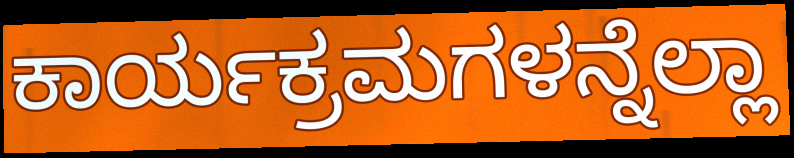
ಕಾರ್ಯಕ್ರಮಗಳನ್ನೆಲ್ಲಾ